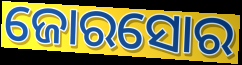
ଜୋରସୋର